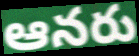
ఆనరు